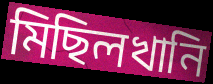
মিছিলখানি